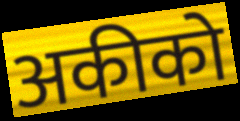
अकीको